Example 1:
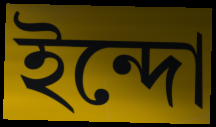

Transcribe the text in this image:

ইন্দো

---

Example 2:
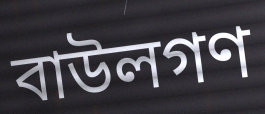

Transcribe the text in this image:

বাউলগণ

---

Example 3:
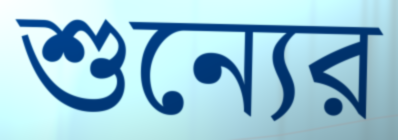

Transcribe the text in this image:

শুন্যের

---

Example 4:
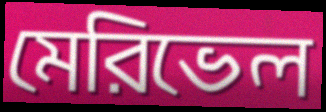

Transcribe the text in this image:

মেরিভেল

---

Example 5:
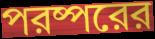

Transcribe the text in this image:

পরষ্পরের